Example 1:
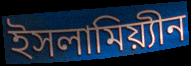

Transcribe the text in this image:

ইসলামিয়্যীন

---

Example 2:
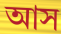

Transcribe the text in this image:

আস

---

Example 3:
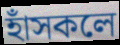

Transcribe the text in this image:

হাঁসকলে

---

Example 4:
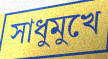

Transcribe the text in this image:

সাধুমুখে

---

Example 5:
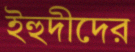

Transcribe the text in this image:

ইহুদীদের